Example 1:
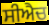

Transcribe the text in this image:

ਸੀਐਚ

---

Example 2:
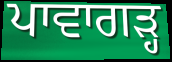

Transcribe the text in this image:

ਪਾਵਾਗੜ੍ਹ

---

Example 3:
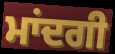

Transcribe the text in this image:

ਮਾਂਦਗੀ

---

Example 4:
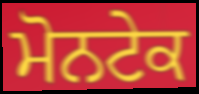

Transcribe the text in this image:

ਮੋਨਟੇਕ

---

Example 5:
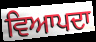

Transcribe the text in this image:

ਵਿਆਪਦਾ